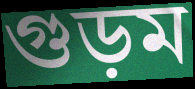
গুড়ম